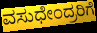
ವಸುಧೇಂದ್ರರಿಗೆ